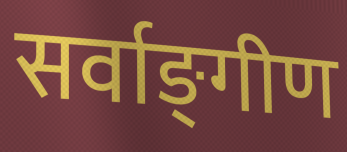
सर्वाङ्गीण